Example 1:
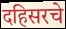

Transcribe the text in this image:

दहिसरचे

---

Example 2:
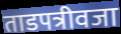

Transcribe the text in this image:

ताडपत्रीवजा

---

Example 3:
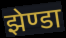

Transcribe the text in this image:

झेण्डा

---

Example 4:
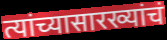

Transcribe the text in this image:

त्यांच्यासारख्यांचं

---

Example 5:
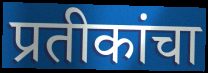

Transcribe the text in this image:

प्रतीकांचा